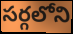
సర్గలోని